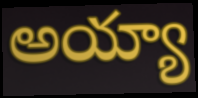
అయ్యా